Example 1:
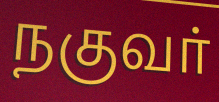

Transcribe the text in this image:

நகுவர்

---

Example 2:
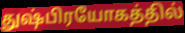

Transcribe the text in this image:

துஷ்பிரயோகத்தில்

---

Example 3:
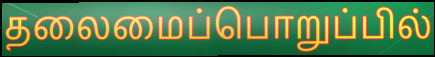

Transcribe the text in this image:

தலைமைப்பொறுப்பில்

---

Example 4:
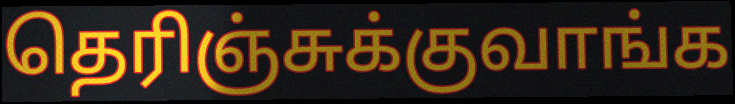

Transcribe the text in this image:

தெரிஞ்சுக்குவாங்க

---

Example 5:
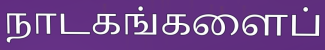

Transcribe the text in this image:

நாடகங்களைப்